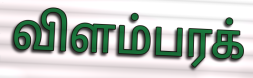
விளம்பரக்